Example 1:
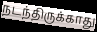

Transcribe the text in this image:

நடந்திருக்காது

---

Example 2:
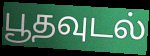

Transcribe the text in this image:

பூதவுடல்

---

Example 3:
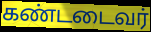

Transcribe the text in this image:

கண்டடைவர்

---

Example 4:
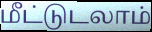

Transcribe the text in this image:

மீட்டுடலாம்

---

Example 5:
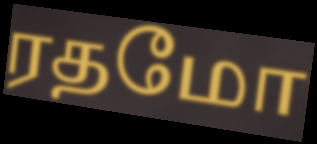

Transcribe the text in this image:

ரதமோ